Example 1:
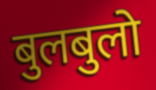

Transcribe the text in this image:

बुलबुलो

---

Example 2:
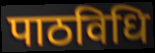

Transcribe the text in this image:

पाठविधि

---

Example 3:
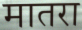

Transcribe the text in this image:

मातरा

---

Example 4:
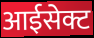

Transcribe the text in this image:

आईसेक्ट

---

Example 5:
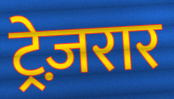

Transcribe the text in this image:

ट्रेज़रार